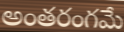
అంతరంగమే